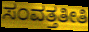
ಸಂವತ್ತತೀತಿ